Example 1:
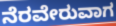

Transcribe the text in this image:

ನೆರವೇರುವಾಗ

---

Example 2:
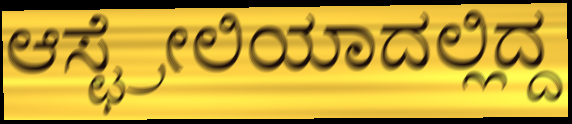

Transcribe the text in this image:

ಆಸ್ಟ್ರೇಲಿಯಾದಲ್ಲಿದ್ದ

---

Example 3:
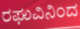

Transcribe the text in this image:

ರಘುವಿನಿಂದ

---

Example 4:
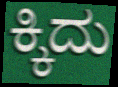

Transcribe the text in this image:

ಕ್ಕಿದು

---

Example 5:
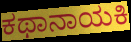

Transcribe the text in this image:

ಕಥಾನಾಯಕಿ